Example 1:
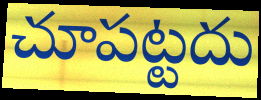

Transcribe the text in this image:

చూపట్టదు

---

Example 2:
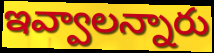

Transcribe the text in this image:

ఇవ్వాలన్నారు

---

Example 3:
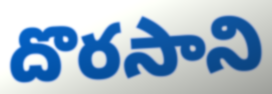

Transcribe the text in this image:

దొరసాని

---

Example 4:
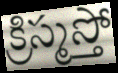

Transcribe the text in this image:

క్రిస్మస్తో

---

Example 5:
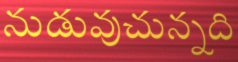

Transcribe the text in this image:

నుడువుచున్నది